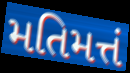
મતિમત્તં